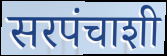
सरपंचाशी